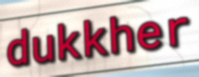
dukkher